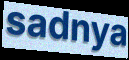
sadnya